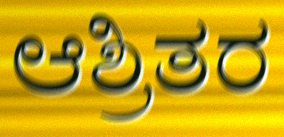
ಆಶ್ರಿತರ